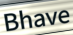
Bhave